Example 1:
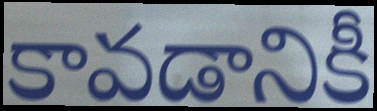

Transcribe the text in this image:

కావడానికీ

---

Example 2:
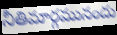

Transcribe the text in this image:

నీతిమార్గమునందు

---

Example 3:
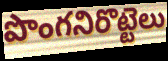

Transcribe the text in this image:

పొంగనిరొట్టెలు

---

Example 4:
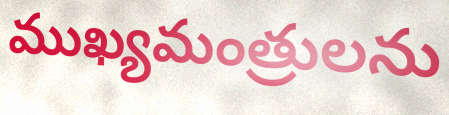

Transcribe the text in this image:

ముఖ్యమంత్రులను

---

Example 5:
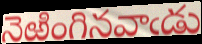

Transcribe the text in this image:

నెఱింగినవాఁడు